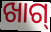
ଖାଗ୍